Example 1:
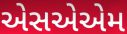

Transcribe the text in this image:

એસએએમ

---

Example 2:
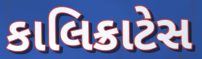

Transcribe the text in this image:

કાલિક્રાટેસ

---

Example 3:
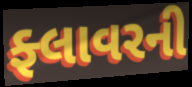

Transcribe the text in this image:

ફ્લાવરની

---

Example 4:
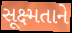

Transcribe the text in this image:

સૂક્ષ્મતાને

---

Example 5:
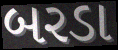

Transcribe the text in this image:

બરડા